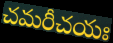
చమరీచయః